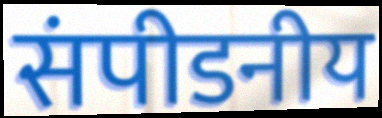
संपीडनीय